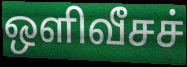
ஒளிவீசச்